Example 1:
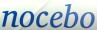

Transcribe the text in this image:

nocebo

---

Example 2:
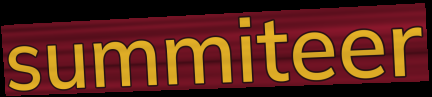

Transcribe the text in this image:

summiteer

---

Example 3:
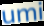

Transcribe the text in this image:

umi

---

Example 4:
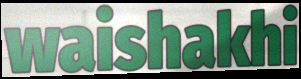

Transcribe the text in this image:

waishakhi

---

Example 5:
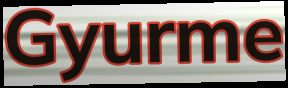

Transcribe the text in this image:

Gyurme